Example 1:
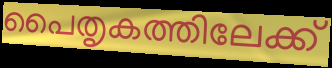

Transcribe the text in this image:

പൈതൃകത്തിലേക്ക്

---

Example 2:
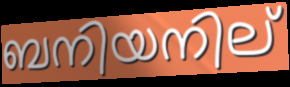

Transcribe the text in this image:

ബനിയനില്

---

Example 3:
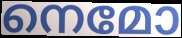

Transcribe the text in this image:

നെമോ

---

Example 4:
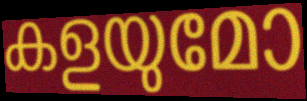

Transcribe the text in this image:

കളയുമോ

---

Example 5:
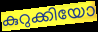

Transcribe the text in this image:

കുറുക്കിയോ